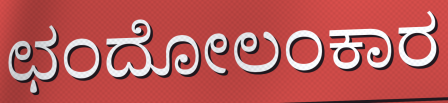
ಛಂದೋಲಂಕಾರ